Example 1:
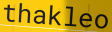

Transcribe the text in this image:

thakleo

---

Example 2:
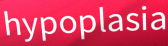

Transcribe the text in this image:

hypoplasia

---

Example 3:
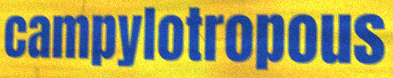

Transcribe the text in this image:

campylotropous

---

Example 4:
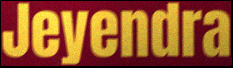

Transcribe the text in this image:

Jeyendra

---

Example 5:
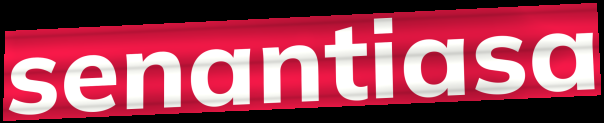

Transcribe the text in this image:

senantiasa